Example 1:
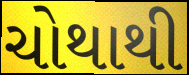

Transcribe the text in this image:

ચોથાથી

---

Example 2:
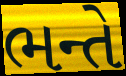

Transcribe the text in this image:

ભન્તે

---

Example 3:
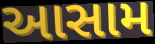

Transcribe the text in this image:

આસામ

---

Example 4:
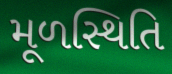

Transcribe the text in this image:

મૂળસ્થિતિ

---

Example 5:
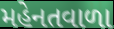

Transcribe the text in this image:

મહેનતવાળા